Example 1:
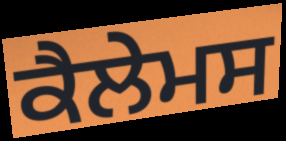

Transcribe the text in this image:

ਕੈਲੇਮਸ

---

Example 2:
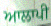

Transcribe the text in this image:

ਆਲਾਪੀ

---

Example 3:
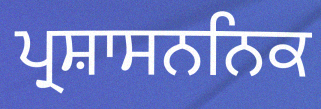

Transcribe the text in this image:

ਪ੍ਰਸ਼ਾਸਨਨਿਕ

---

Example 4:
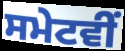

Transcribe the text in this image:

ਸਮੇਟਵੀਂ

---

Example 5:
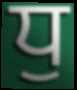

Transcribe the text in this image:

ਧੁ